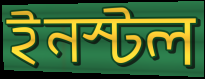
ইনস্টল